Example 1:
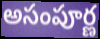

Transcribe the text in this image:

అసంపూర్ణ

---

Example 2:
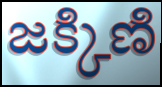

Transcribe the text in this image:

జక్కిణి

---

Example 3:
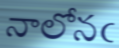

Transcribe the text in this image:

నాలోనఁ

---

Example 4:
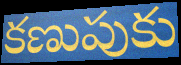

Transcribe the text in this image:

కణుపుకు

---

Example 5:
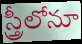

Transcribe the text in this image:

స్త్రీలోనూ